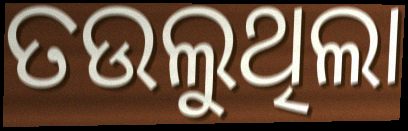
ତଉଲୁଥିଲା